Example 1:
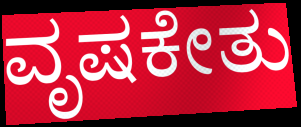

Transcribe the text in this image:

ವೃಷಕೇತು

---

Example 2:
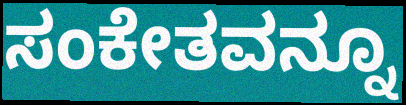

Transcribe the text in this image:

ಸಂಕೇತವನ್ನೂ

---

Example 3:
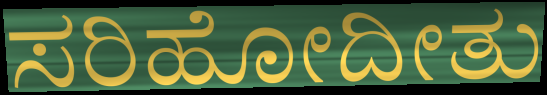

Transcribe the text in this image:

ಸರಿಹೋದೀತು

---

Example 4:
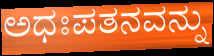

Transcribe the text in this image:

ಅಧಃಪತನವನ್ನು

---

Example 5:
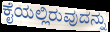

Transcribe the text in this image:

ಕೈಯಲ್ಲಿರುವುದನ್ನು